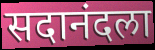
सदानंदला